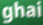
ghai